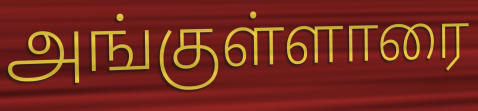
அங்குள்ளாரை